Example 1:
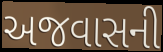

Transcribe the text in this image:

અજવાસની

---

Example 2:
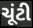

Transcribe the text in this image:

ચૂંટી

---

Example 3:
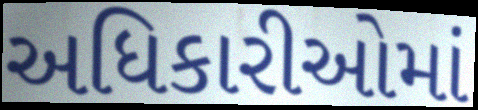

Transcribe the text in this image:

અધિકારીઓમાં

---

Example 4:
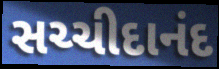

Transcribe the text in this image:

સચ્ચીદાનંદ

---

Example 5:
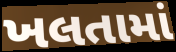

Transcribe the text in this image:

ખલતામાં